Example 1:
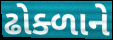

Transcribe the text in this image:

ઢોક્ળાને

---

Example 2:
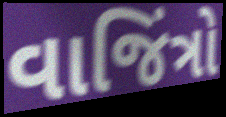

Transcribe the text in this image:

વાજિંત્રો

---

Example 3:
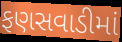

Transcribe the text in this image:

ફણસવાડીમાં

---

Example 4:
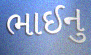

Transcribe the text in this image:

ભાઈનુ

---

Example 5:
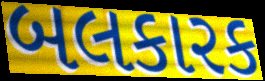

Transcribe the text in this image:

બલકારક